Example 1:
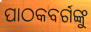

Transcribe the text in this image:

ପାଠକବର୍ଗଙ୍କୁ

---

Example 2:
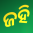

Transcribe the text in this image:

ଜହି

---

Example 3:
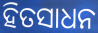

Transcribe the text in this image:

ହିତସାଧନ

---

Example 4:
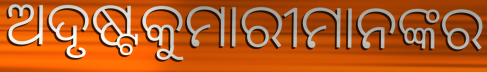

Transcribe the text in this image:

ଅଦୃଷ୍ଟକୁମାରୀମାନଙ୍କର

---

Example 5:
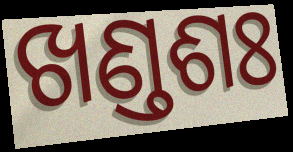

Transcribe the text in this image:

ଖଣ୍ଡଶଃ